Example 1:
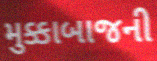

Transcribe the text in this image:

મુક્કાબાજની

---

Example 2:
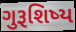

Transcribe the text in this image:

ગુરૂશિષ્ય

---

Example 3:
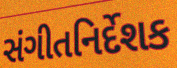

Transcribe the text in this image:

સંગીતનિર્દેશક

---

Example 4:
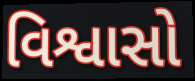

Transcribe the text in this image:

વિશ્વાસો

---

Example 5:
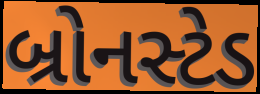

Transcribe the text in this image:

બ્રોનસ્ટેડ